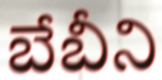
బేబీని